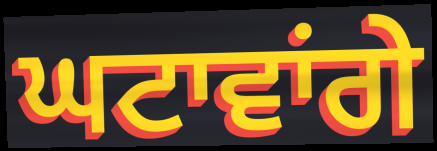
ਘਟਾਵਾਂਗੇ